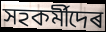
সহকৰ্মীদেৰ